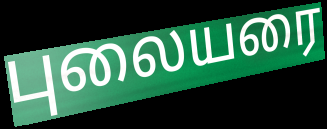
புலையரை